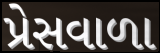
પ્રેસવાળા